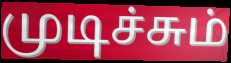
முடிச்சும்